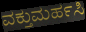
ವಕ್ತುಮರ್ಹಸಿ